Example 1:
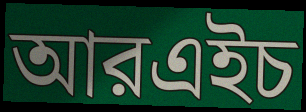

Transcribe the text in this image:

আরএইচ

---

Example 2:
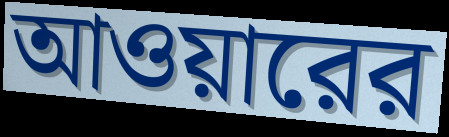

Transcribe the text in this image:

আওয়ারের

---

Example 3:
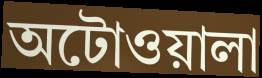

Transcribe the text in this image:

অটোওয়ালা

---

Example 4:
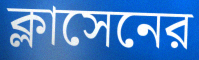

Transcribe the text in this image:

ক্লাসেনের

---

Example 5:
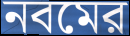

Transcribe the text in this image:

নবমের